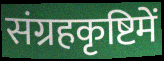
संग्रहकृष्टिमें